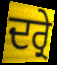
ਦਰ੍ਰੇ